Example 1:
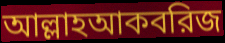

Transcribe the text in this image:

আল্লাহআকবরিজ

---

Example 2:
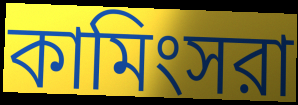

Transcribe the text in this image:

কামিংসরা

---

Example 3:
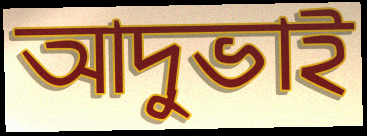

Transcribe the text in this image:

আদুভাই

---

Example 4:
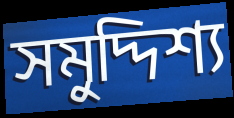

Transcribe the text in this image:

সমুদ্দিশ্য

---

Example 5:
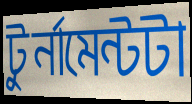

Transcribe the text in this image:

টুর্নামেন্টটা